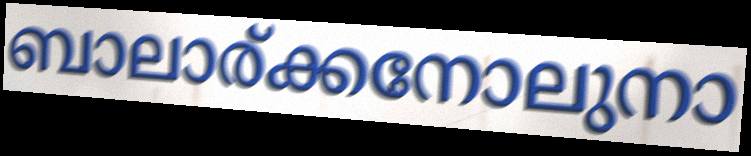
ബാലാര്ക്കനോലുനാ